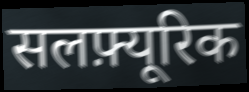
सलफ़्यूरिक